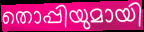
തൊപ്പിയുമായി